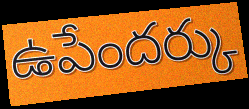
ఉపేందర్కు